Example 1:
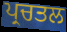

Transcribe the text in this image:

ਪ੍ਰਚਤਲ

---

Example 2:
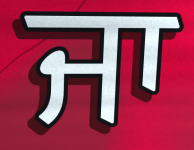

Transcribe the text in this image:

ਜਾ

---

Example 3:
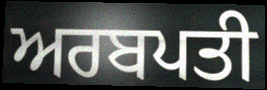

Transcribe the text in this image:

ਅਰਬਪਤੀ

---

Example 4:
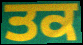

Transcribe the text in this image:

ਤਕ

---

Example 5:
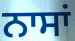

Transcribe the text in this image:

ਨਾਸਾਂ